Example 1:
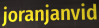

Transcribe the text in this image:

joranjanvid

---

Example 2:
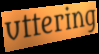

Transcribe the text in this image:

uttering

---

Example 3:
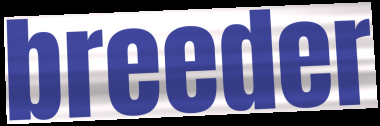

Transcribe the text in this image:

breeder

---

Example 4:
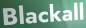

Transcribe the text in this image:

Blackall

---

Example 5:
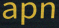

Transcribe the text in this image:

apn